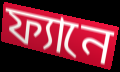
ফ্যানে